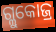
ଗ୍ଲୁକୋଜ୍ର